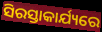
ସିରସ୍ତାକାର୍ଯ୍ୟରେ